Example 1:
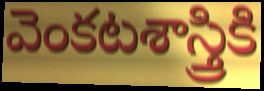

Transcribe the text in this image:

వెంకటశాస్త్రికి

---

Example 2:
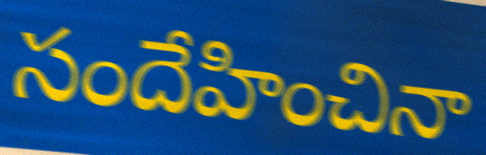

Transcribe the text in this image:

సందేహించినా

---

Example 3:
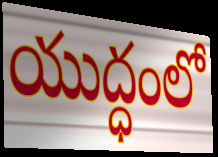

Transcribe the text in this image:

యుద్ధంలో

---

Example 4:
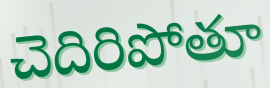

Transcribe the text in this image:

చెదిరిపోతూ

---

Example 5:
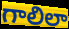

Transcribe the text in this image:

గాలిలా